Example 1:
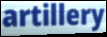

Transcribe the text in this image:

artillery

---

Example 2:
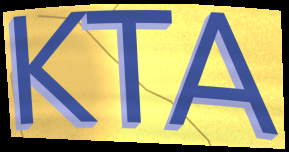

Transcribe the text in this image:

KTA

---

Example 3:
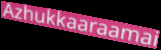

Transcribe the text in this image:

Azhukkaaraamai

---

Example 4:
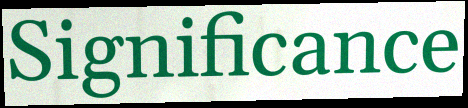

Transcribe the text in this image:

Significance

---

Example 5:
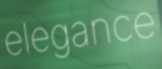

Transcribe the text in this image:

elegance